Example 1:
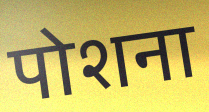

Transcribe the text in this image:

पोशना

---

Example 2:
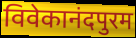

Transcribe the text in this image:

विवेकानंदपुरम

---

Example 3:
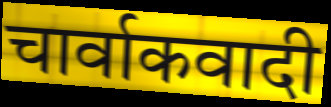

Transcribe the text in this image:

चार्वाकवादी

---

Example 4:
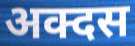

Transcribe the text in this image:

अक्दस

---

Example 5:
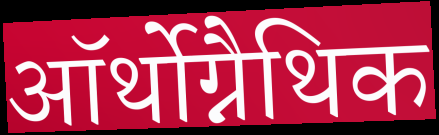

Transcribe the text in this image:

ऑर्थोग्नैथिक